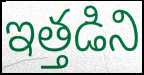
ఇత్తడిని